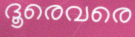
ദൂരെവരെ